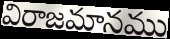
విరాజమానము